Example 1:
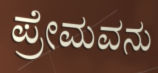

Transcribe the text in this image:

ಪ್ರೇಮವನು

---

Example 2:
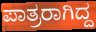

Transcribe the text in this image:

ಪಾತ್ರರಾಗಿದ್ದ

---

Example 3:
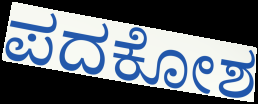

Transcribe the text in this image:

ಪದಕೋಶ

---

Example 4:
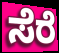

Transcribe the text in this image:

ಸೆರೆ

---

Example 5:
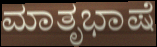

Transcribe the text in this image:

ಮಾತೃಭಾಷೆ